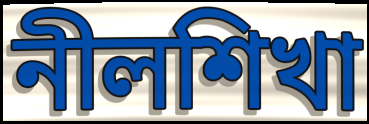
নীলশিখা